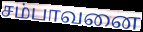
சம்பாவனை